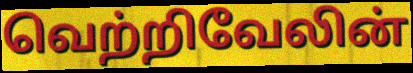
வெற்றிவேலின்